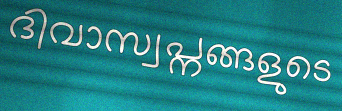
ദിവാസ്വപ്നങ്ങളുടെ